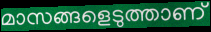
മാസങ്ങളെടുത്താണ്